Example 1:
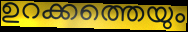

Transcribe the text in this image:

ഉറക്കത്തെയും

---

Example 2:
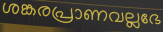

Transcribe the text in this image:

ശങ്കരപ്രാണവല്ലഭേ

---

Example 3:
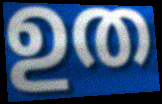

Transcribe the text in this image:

ഉത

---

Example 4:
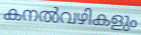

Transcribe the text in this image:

കനൽവഴികളും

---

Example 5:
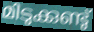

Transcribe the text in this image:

മിടുക്കുണ്ടു്